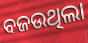
ବଜଉଥିଲା